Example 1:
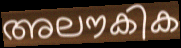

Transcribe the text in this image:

അലൗകിക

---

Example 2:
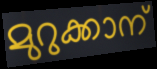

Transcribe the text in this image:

മുറുക്കാന്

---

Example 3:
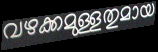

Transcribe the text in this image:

വഴക്കമുള്ളതുമായ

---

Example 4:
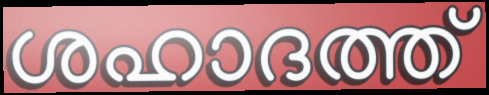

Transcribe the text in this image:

ശഹാദത്ത്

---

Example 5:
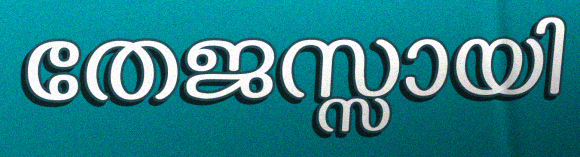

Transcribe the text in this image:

തേജസ്സായി